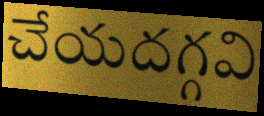
చేయదగ్గవి